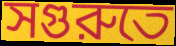
সগুরুতে